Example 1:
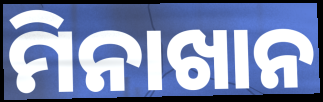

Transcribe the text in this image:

ମିନାଖାନ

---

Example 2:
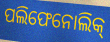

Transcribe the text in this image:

ପଲିଫେନୋଲିକ୍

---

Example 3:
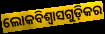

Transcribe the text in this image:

ଲୋକବିଶ୍ଵାସଗୁଡ଼ିକର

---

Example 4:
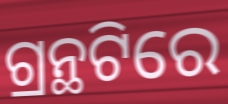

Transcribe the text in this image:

ଗ୍ରନ୍ଥଟିରେ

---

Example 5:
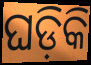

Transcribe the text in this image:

ଘଡ଼ିକି